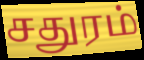
சதுரம்